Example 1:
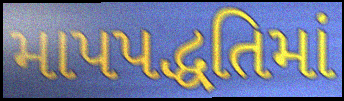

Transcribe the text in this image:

માપપદ્ધતિમાં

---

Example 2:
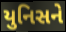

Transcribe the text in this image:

યુનિસને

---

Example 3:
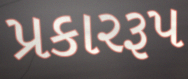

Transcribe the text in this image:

પ્રકારરૂપ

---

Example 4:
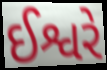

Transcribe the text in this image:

ઈશ્વરે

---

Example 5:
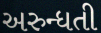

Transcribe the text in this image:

અરુન્ધતી